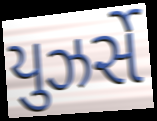
યુઝર્સે